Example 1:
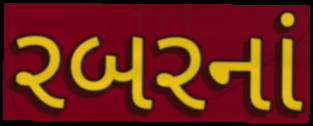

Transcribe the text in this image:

રબરનાં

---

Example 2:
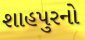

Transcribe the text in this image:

શાહપુરનો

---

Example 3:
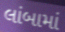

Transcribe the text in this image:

લાંબામાં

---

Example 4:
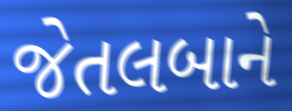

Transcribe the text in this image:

જેતલબાને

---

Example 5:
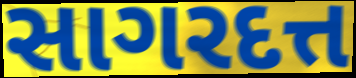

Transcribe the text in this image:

સાગરદત્ત